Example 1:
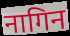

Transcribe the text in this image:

नागिन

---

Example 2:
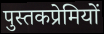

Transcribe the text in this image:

पुस्तकप्रेमियों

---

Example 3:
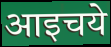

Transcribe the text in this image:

आइचये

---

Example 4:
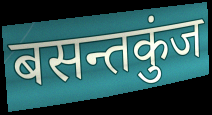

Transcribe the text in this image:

बसन्तकुंज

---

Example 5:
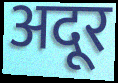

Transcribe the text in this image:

अदूर